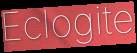
Eclogite